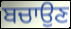
ਬਚਾਉਣ